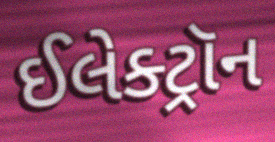
ઈલેક્ટ્રૉન